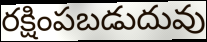
రక్షింపబడుదువు